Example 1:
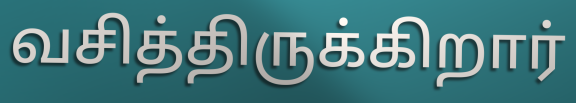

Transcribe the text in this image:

வசித்திருக்கிறார்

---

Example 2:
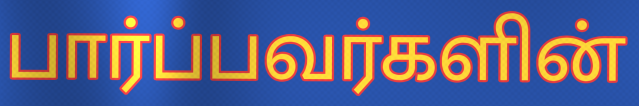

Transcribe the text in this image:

பார்ப்பவர்களின்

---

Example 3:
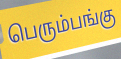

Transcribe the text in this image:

பெரும்பங்கு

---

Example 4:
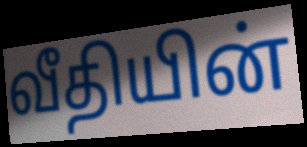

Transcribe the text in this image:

வீதியின்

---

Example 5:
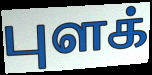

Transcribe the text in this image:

புளக்